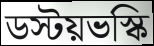
ডস্টয়ভস্কি